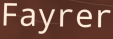
Fayrer